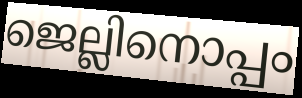
ജെല്ലിനൊപ്പം